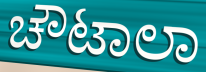
ಚೌಟಾಲಾ